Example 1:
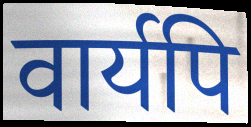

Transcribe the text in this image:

वार्यपि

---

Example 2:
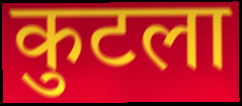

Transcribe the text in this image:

कुटला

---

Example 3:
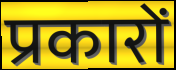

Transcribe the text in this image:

प्रकारों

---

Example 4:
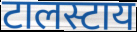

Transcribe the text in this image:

टालस्टाय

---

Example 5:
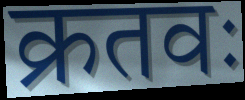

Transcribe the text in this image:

क्रतवः